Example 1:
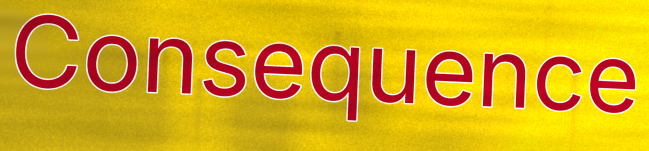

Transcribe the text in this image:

Consequence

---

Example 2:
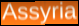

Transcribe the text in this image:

Assyria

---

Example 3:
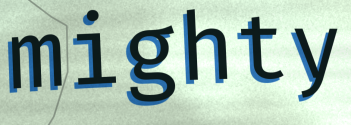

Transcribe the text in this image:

mighty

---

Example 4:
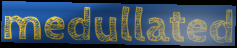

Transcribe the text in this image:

medullated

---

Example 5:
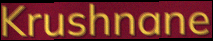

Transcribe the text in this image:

Krushnane